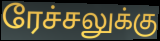
ரேச்சலுக்கு